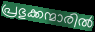
പ്രഭുക്കന്മാരിൽ